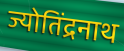
ज्योतिंद्रनाथ